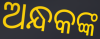
ଅନ୍ଧକଙ୍କ